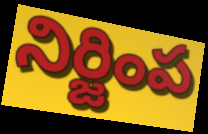
నిర్జింప